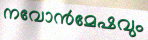
നവോൻമേഷവും